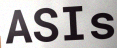
ASIs